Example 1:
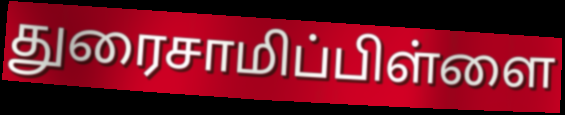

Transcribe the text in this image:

துரைசாமிப்பிள்ளை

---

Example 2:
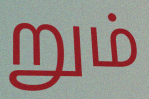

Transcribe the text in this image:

றும்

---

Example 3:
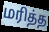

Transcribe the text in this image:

மரித்த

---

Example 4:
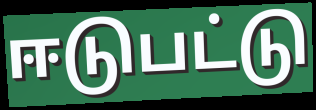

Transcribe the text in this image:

ஈடுபட்டு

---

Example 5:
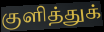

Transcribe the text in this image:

குளித்துக்